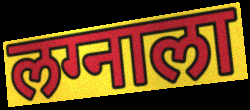
लग्नाला